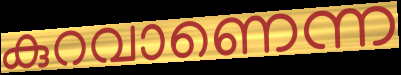
കുറവാണെന്ന